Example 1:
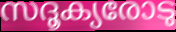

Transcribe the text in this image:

സദൂക്യരോടു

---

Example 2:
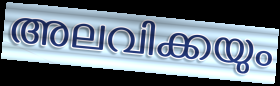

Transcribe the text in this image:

അലവിക്കയും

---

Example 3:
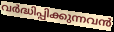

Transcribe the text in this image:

വർദ്ധിപ്പിക്കുന്നവൻ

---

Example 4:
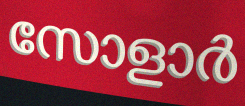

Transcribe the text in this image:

സോളാർ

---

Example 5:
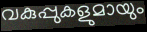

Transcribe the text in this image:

വകുപ്പുകളുമായും